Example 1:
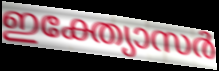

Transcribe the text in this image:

ഇക്ത്യോസർ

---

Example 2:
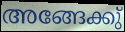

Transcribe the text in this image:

അങ്ങേക്കു്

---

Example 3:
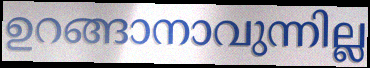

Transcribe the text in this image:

ഉറങ്ങാനാവുന്നില്ല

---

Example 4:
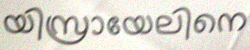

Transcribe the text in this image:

യിസ്രായേലിനെ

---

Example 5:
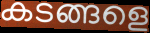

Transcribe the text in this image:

കടങ്ങളെ